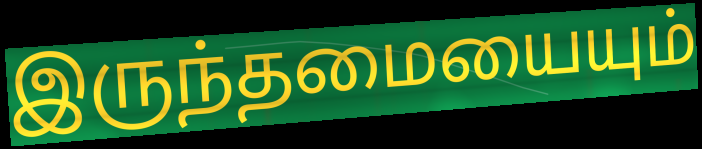
இருந்தமையையும்